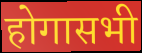
होगासभी